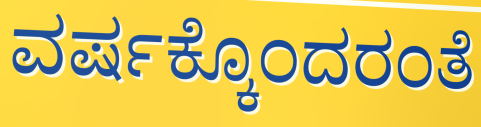
ವರ್ಷಕ್ಕೊಂದರಂತೆ